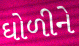
ઘોળીને